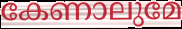
കേണാലുമേ